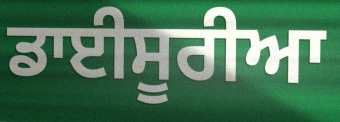
ਡਾਈਸੂਰੀਆ